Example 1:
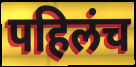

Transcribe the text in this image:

पहिलंच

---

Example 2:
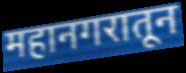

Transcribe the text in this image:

महानगरातून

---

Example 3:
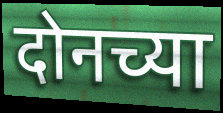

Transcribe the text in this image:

दोनच्या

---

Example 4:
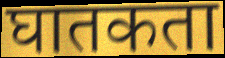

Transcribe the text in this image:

घातकता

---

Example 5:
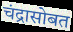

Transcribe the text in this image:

चंद्रासोबत